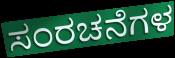
ಸಂರಚನೆಗಳ